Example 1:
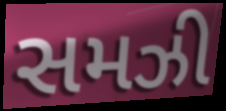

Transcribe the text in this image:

સમઝી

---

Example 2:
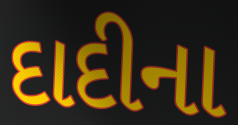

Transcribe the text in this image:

દાદીના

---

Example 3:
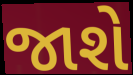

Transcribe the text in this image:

જાશે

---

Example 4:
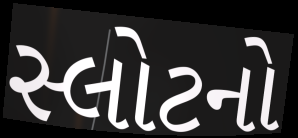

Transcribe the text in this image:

સ્લોટનો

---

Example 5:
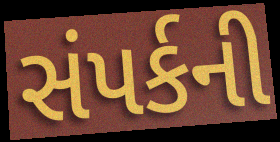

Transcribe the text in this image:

સંપર્કની